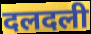
दलदली